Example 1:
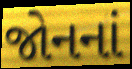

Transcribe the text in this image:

જોનનાં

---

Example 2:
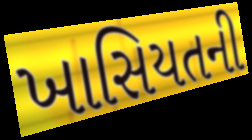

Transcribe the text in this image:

ખાસિયતની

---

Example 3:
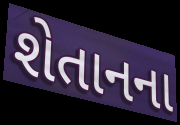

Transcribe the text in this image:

શેતાનના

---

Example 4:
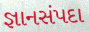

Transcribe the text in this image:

જ્ઞાનસંપદા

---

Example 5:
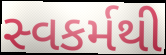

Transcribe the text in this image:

સ્વકર્મથી